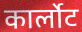
कार्लोट